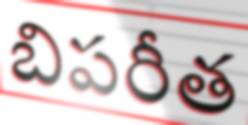
బిపరీత